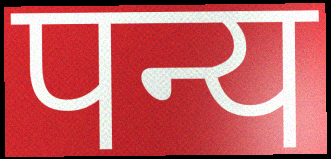
पन्य